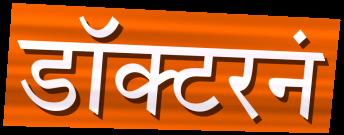
डॉक्टरनं